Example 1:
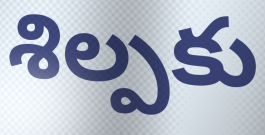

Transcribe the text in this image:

శిల్పకు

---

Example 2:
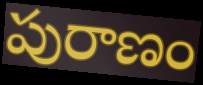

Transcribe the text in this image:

పురాణం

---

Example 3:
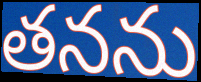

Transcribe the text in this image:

తనను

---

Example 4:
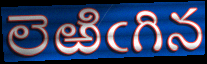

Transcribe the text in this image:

లెఱిఁగిన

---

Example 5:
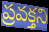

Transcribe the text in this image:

ప్రవక్తని